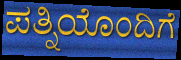
ಪತ್ನಿಯೊಂದಿಗೆ